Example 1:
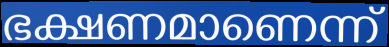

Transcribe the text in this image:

ഭക്ഷണമാണെന്ന്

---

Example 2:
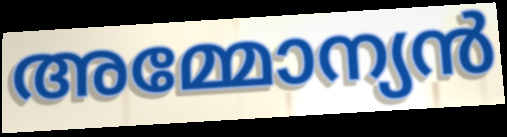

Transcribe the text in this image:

അമ്മോന്യൻ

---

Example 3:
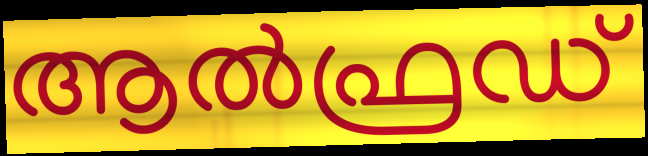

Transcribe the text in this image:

ആൽഫ്രഡ്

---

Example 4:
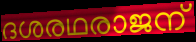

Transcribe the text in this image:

ദശരഥരാജന്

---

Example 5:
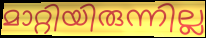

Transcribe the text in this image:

മാറ്റിയിരുന്നില്ല